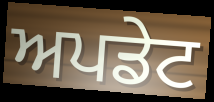
ਅਪਡੇਟ